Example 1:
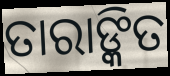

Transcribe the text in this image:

ତାରାଙ୍କିତ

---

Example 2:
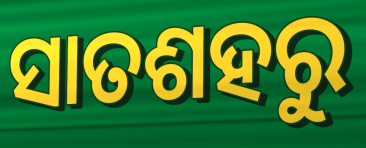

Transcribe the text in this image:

ସାତଶହରୁ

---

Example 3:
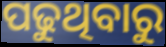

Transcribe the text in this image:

ପଢୁଥିବାରୁ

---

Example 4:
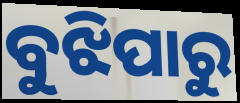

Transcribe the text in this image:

ବୁଝିପାରୁ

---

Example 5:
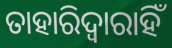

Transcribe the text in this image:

ତାହାରିଦ୍ୱାରାହିଁ